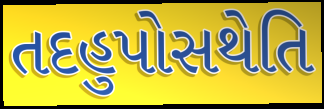
તદહુપોસથેતિ